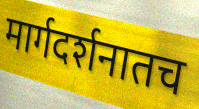
मार्गदर्शनातच